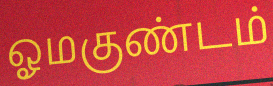
ஓமகுண்டம்